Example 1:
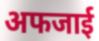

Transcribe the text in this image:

अफजाई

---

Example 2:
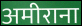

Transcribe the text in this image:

अमीराना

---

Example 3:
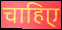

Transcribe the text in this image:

चाहिए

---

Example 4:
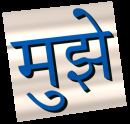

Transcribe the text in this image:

मुझे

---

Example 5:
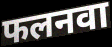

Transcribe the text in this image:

फलनवा